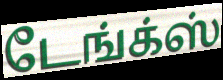
டேங்க்ஸ்